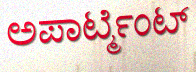
ಅಪಾರ್ಟ್ಮೆಂಟ್